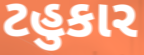
ટહુકાર